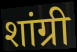
शांग्री